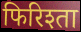
फिरिश्ता